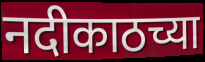
नदीकाठच्या